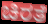
ಚಿರತೆ